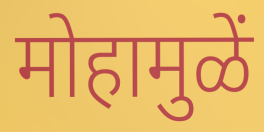
मोहामुळें